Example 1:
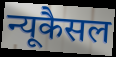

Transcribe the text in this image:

न्यूकैसल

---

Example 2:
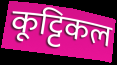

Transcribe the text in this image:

कूट्टिकल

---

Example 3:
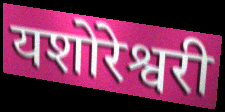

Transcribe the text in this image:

यशोरेश्वरी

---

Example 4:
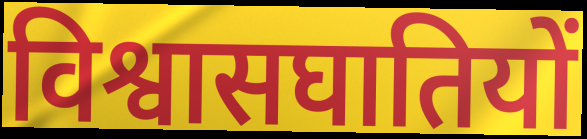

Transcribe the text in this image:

विश्वासघातियों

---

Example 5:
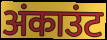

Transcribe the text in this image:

अंकाउंट